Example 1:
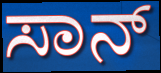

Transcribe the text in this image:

ಸಾನ್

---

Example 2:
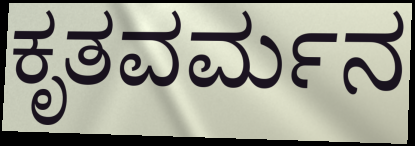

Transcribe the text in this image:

ಕೃತವರ್ಮನ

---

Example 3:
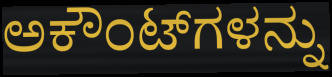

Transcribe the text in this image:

ಅಕೌಂಟ್‌ಗಳನ್ನು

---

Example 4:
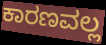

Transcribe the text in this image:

ಕಾರಣವಲ್ಲ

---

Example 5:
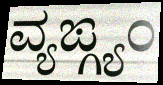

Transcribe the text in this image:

ವ್ಯಙ್ಗ್ಯಂ